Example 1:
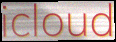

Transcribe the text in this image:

icloud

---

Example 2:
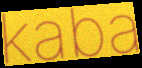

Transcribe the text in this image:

kaba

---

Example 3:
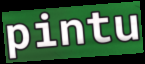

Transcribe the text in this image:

pintu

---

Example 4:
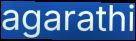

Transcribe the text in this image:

agarathi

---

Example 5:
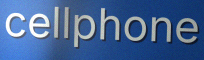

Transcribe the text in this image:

cellphone